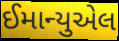
ઈમાન્યુએલ